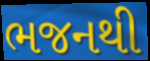
ભજનથી